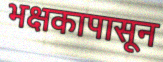
भक्षकापासून